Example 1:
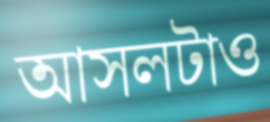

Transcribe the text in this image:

আসলটাও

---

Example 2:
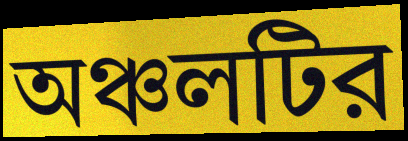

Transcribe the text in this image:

অঞ্চলটির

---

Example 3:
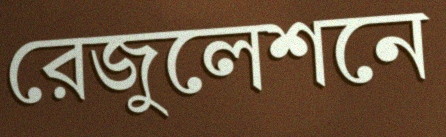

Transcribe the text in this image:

রেজুলেশনে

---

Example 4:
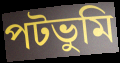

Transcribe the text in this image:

পটভুমি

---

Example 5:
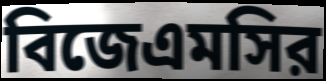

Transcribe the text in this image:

বিজেএমসির